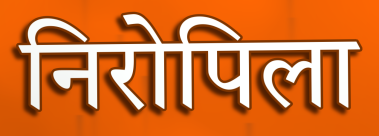
निरोपिला